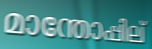
മാന്തോപ്പില്